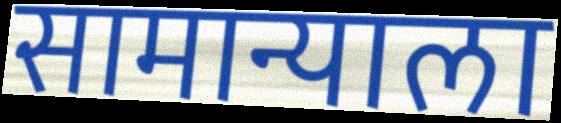
सामान्याला